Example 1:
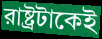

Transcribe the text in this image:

রাষ্ট্রটাকেই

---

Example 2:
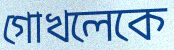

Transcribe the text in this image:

গোখলেকে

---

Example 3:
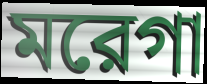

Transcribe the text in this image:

মরেগা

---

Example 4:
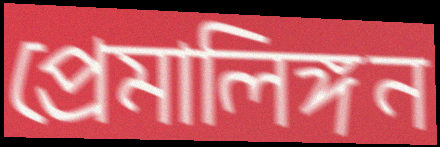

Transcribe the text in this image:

প্রেমালিঙ্গন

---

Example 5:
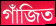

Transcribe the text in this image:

গাঁজিত